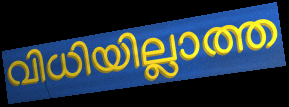
വിധിയില്ലാത്ത